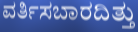
ವರ್ತಿಸಬಾರದಿತ್ತು